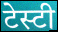
टेस्‍टी